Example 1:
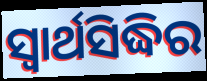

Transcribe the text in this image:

ସ୍ଵାର୍ଥସିଦ୍ଧିର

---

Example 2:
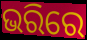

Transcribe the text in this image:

ଭରିରେ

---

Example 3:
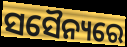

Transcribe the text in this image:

ସସୈନ୍ୟରେ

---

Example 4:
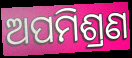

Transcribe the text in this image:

ଅପମିଶ୍ରଣ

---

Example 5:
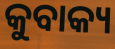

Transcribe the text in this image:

କୁବାକ୍ୟ